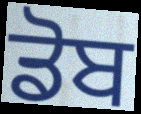
ਡੋਬ